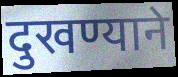
दुखण्याने